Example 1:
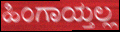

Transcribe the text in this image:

ಹಿಂಗಾಯ್ತಲ್ಲ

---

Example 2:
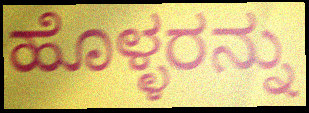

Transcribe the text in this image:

ಹೊಳ್ಳರನ್ನು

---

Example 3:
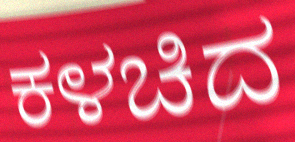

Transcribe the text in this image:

ಕಳಚಿದ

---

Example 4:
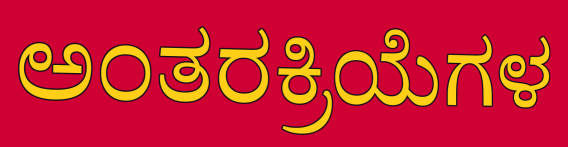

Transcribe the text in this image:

ಅಂತರಕ್ರಿಯೆಗಳ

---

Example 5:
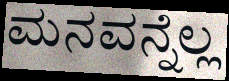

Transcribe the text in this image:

ಮನವನ್ನೆಲ್ಲ